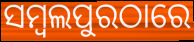
ସମ୍ବଲପୁରଠାରେ